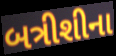
બત્રીશીના